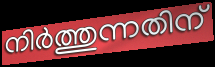
നിർത്തുന്നതിന്